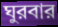
ঘুরবার